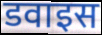
डवाइस